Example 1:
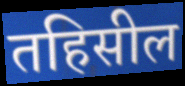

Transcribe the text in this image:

तहिसील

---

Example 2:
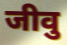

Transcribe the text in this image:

जीवु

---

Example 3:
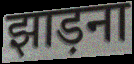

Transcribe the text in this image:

झाड़ना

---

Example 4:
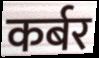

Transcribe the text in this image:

कर्बर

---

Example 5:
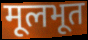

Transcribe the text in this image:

मूलभूत